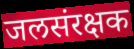
जलसंरक्षक